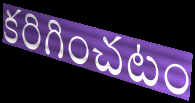
కరిగించటం